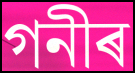
গনীৰ